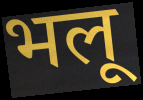
भलू